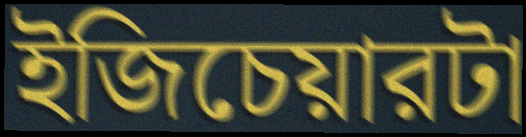
ইজিচেয়ারটা